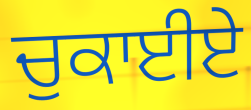
ਚੁਕਾਈਏ